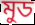
মুড